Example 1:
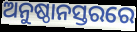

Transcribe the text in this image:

ଅନୁଷ୍ଠାନସ୍ତରରେ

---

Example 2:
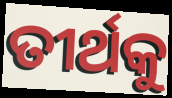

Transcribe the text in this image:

ତୀର୍ଥକୁ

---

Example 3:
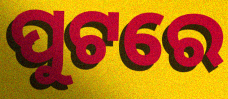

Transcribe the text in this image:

ପୁଟରେ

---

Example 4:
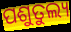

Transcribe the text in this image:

ପଶୁତୁଲ୍ୟ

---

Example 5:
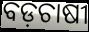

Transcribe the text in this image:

ବଡ଼ଚାଷୀ